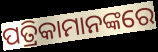
ପତ୍ରିକାମାନଙ୍କରେ